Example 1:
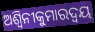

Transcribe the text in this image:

ଅଶ୍ୱିନୀକୁମାରଦ୍ୱୟ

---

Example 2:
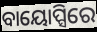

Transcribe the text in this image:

ବାୟୋପ୍ସିରେ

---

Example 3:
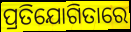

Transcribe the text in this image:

ପ୍ରତିଯୋଗିତାରେ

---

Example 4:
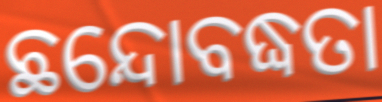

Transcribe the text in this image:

ଛନ୍ଦୋବଦ୍ଧତା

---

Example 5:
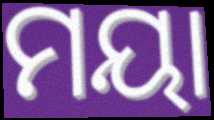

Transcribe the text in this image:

ମୟା